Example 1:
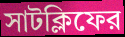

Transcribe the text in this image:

সাটক্লিফের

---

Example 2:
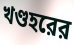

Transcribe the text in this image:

খণ্ডহরের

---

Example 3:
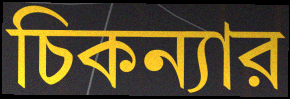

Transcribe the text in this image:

চিকন্যার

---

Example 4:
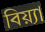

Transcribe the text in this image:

বিয়্যা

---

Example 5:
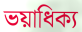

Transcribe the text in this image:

ভয়াধিক্য